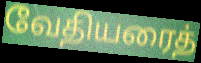
வேதியரைத்